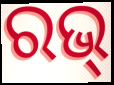
ରଭ୍